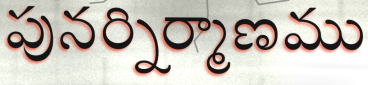
పునర్నిర్మాణము